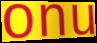
onu